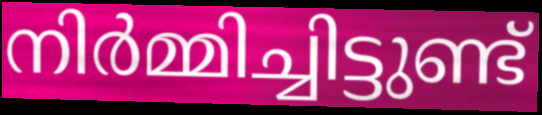
നിർമ്മിച്ചിട്ടുണ്ട്